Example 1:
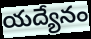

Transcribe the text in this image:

యద్యేనం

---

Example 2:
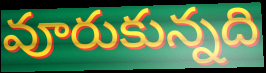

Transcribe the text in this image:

వూరుకున్నది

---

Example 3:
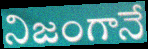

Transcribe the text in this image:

నిజంగానే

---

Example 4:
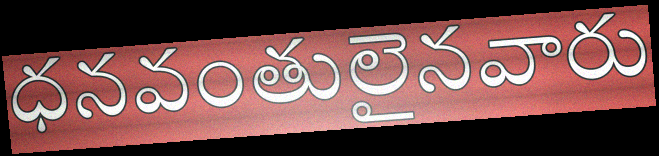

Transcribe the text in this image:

ధనవంతులైనవారు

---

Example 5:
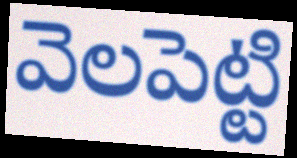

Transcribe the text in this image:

వెలపెట్టి